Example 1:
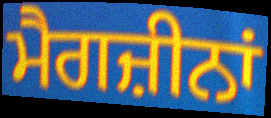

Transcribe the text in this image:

ਮੈਗਜ਼ੀਨਾਂ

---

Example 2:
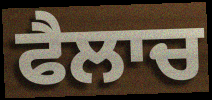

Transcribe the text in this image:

ਫੈਲਾਚ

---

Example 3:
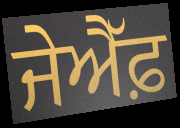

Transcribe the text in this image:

ਜੇਐੱਫ਼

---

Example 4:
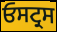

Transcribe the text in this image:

ਓਸਟ੍ਰਸ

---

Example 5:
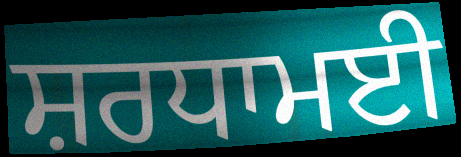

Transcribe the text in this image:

ਸ਼ਰਧਾਮਈ